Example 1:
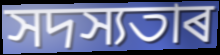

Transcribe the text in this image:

সদস্যতাৰ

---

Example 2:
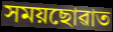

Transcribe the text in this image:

সময়ছোৱাত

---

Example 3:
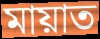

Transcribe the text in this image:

মায়াত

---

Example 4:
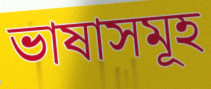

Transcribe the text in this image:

ভাষাসমূহ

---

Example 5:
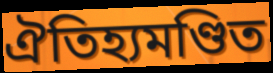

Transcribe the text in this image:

ঐতিহ্যমণ্ডিত